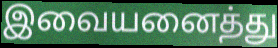
இவையனைத்து